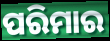
ପରିମାର